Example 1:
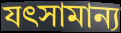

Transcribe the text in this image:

যৎসামান্য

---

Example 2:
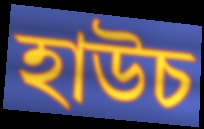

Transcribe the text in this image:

হাউচ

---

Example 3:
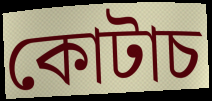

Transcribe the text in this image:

কোটাচ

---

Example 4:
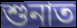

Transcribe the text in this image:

শুনাত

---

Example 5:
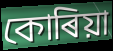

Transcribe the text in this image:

কোৰিয়া